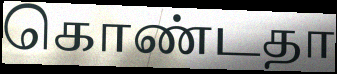
கொண்டதா